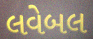
લવેબલ